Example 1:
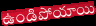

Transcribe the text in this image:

ఉండిపోయాయి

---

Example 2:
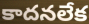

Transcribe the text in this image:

కాదనలేక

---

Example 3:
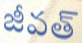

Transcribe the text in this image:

జీవత్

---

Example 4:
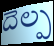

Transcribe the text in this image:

దెల్ప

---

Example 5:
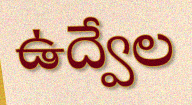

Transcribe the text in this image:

ఉద్వేల